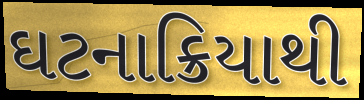
ઘટનાક્રિયાથી